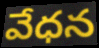
వేధన